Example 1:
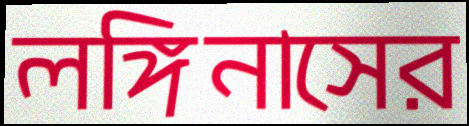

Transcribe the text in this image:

লঙ্গিনাসের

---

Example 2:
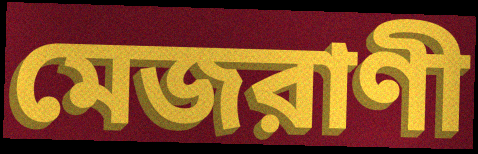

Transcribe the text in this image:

মেজরাণী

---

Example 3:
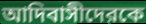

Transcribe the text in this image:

আদিবাসীদেরকে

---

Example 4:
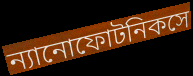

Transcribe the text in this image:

ন্যানোফোটনিকসে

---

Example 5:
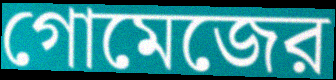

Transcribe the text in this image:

গোমেজের